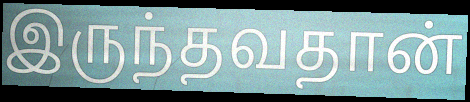
இருந்தவதான்